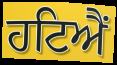
ਹਟਿਐਂ